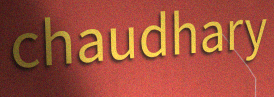
chaudhary